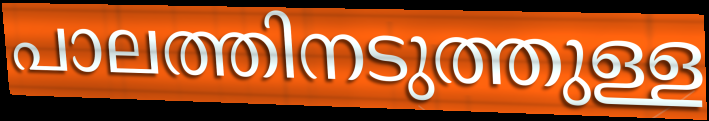
പാലത്തിനടുത്തുള്ള